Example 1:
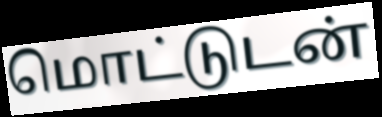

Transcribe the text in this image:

மொட்டுடன்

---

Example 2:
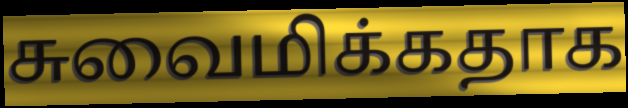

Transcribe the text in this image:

சுவைமிக்கதாக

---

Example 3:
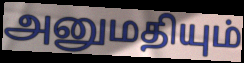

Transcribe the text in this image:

அனுமதியும்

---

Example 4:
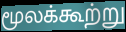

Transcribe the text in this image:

மூலக்கூற்று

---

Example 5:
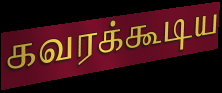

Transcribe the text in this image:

கவரக்கூடிய